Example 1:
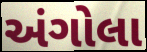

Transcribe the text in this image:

અંગોલા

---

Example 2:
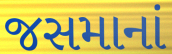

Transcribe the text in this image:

જસમાનાં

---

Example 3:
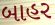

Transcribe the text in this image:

બાહર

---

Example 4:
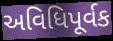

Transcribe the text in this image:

અવિધિપૂર્વક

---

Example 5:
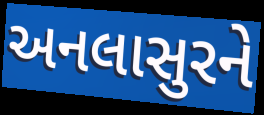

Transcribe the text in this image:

અનલાસુરને